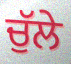
ਚੁੱਲੇ